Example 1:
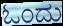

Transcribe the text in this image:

ಓಂದು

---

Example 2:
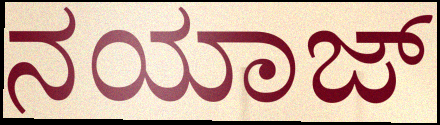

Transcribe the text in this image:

ನಯಾಜ್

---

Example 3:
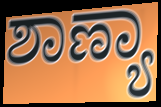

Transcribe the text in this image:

ಶಾಣ್ಯಾ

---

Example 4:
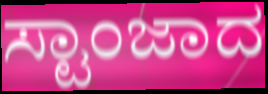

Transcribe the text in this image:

ಸ್ಟಾಂಜಾದ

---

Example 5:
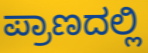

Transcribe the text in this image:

ಪ್ರಾಣದಲ್ಲಿ